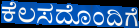
ಕೆಲಸದೊಂದಿಗೆ